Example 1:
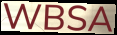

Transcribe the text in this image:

WBSA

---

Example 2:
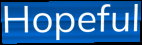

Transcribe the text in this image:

Hopeful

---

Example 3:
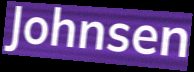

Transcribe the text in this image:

Johnsen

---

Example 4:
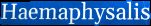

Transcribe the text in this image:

Haemaphysalis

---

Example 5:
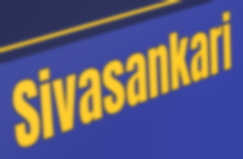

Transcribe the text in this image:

Sivasankari